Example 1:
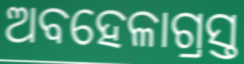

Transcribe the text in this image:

ଅବହେଳାଗ୍ରସ୍ତ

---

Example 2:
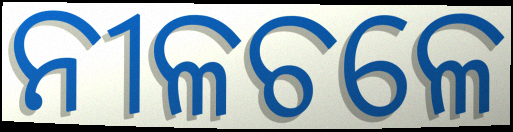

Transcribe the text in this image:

ନୀଳଚଳେ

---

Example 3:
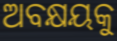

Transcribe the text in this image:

ଅବକ୍ଷୟକୁ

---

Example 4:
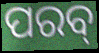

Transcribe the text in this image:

ପରବ୍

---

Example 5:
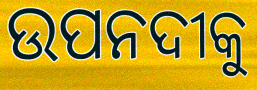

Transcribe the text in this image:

ଉପନଦୀକୁ